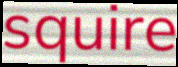
squire